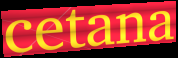
cetana